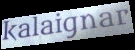
kalaignar